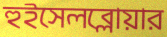
হুইসেলব্লোয়ার